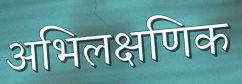
अभिलक्षणिक